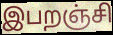
இபறஞ்சி